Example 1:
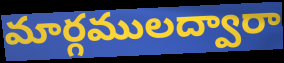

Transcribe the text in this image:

మార్గములద్వారా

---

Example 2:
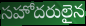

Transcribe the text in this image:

సహోదరులైన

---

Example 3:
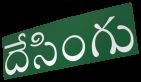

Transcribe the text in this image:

దేసింగు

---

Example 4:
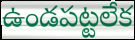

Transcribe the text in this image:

ఉండపట్టలేక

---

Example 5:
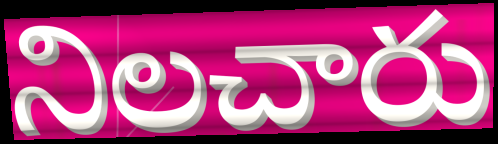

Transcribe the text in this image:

నిలచారు